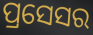
ପ୍ରସେସର